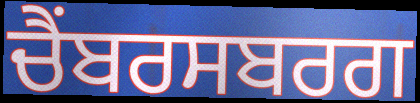
ਚੈਂਬਰਸਬਰਗ